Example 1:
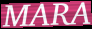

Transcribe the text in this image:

MARA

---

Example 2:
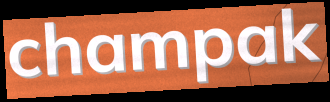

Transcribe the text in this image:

champak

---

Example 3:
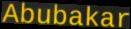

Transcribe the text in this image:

Abubakar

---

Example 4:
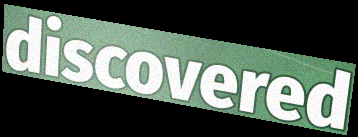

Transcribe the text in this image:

discovered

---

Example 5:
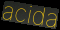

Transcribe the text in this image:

acida